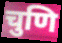
चुणि